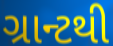
ગ્રાન્ટથી